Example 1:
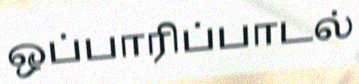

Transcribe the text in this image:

ஒப்பாரிப்பாடல்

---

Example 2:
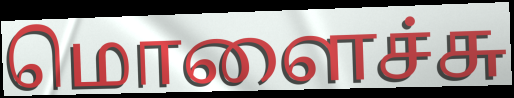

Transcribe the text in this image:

மொளைச்சு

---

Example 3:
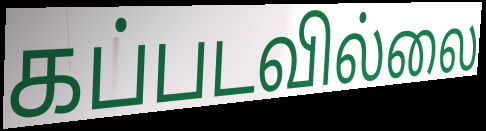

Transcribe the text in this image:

கப்படவில்லை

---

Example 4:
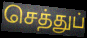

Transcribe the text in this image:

செத்துப்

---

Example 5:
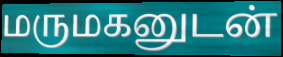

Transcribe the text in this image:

மருமகனுடன்